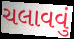
ચલાવવું